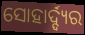
ସୋହାର୍ଦ୍ଦ୍ୟର